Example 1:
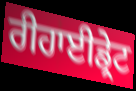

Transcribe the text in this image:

ਰੀਹਾਈਡ੍ਰੇਟ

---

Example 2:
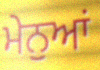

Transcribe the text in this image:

ਮੇਨੁਆਂ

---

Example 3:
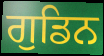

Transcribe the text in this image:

ਗੁਡਿਨ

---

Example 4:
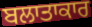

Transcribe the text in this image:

ਬਲਾਤਾਕਾਰ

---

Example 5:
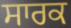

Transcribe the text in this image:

ਸਾਰਕ